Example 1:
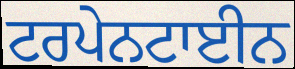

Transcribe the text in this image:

ਟਰਪੇਨਟਾਈਨ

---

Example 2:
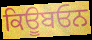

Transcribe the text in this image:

ਕਿਊਬਓਨ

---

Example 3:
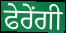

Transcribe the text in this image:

ਫੇਰੇਂਗੀ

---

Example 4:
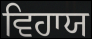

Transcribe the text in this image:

ਵਿਹਾਯ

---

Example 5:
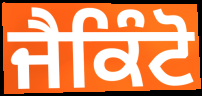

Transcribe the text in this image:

ਜੈਕਿੰਟੋ